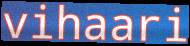
vihaari